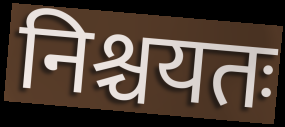
निश्चयतः